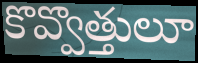
కొవ్వొత్తులూ